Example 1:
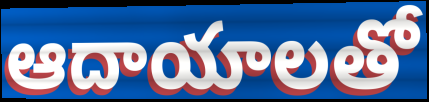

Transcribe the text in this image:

ఆదాయాలతో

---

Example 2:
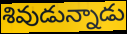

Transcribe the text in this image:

శివుడున్నాడు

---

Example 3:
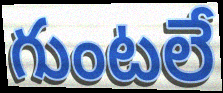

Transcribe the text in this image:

గుంటలే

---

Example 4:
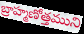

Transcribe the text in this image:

బ్రాహ్మణోత్తముని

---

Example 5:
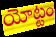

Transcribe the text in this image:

యోట్టం